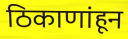
ठिकाणांहून